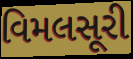
વિમલસૂરી